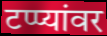
टप्प्यांवर